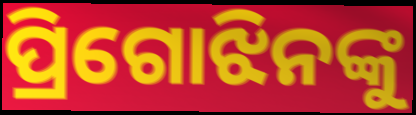
ପ୍ରିଗୋଝିନଙ୍କୁ